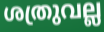
ശത്രുവല്ല